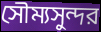
সৌম্যসুন্দর